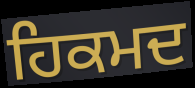
ਹਿਕਮਦ